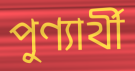
পুণ্যার্থী